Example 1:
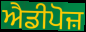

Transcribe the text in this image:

ਐਡੀਪੋਜ਼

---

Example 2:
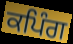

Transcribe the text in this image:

ਕਪਿੰਗ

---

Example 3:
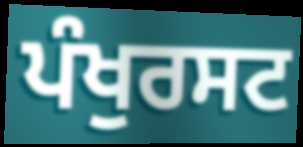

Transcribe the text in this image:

ਪੰਖੁਰਸਟ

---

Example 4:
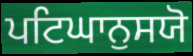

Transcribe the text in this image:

ਪਟਿਘਾਨੁਸਯੋ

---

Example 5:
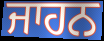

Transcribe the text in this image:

ਜਾਹਨ